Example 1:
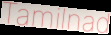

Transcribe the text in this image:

Tamilnad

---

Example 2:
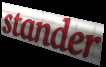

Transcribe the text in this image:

stander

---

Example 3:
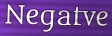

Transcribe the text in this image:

Negatve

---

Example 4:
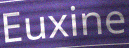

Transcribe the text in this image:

Euxine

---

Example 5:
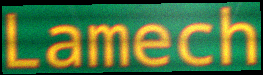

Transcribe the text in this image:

Lamech